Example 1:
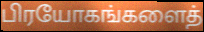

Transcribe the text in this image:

பிரயோகங்களைத்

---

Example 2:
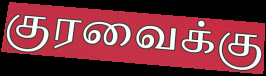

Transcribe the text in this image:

குரவைக்கு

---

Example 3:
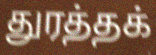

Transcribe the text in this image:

துரத்தக்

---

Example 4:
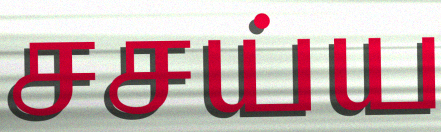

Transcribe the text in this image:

சசய்ய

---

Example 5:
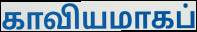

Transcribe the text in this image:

காவியமாகப்